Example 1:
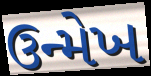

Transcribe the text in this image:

ઉન્મેખ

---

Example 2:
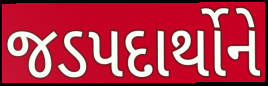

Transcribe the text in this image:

જડપદાર્થોને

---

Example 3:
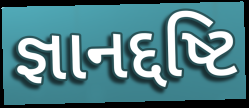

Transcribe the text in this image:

જ્ઞાનદ્દષ્ટિ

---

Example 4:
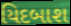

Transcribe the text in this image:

યિદબાશ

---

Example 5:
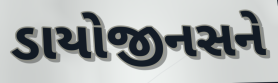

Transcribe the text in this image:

ડાયોજીનસને